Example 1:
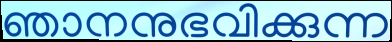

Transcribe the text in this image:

ഞാനനുഭവിക്കുന്ന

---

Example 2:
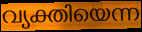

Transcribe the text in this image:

വ്യക്തിയെന്ന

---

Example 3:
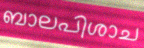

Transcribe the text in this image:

ബാലപിശാച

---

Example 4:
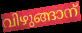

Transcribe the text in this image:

വിഴുങ്ങാന്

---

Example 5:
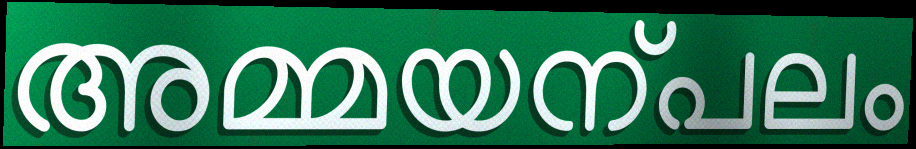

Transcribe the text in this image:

അമ്മയന്പലം